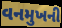
વનમુખની